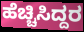
ಹೆಚ್ಚಿಸಿದ್ದರ